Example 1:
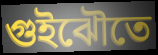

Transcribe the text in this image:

গুইঝৌতে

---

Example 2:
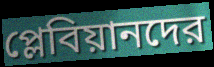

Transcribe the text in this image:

প্লেবিয়ানদের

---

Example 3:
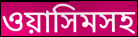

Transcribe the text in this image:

ওয়াসিমসহ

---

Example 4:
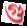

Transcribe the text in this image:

গু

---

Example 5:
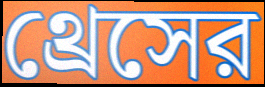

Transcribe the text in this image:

থ্রেসের